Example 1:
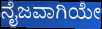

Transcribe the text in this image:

ನೈಜವಾಗಿಯೇ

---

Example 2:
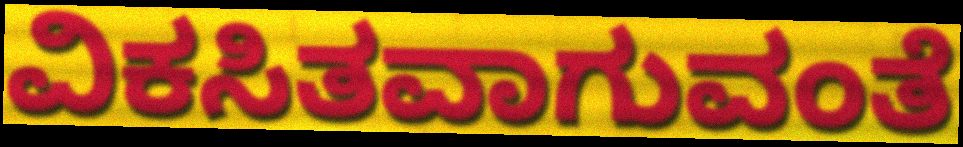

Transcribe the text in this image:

ವಿಕಸಿತವಾಗುವಂತೆ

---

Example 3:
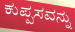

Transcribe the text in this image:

ಕುಪ್ಪಸವನ್ನು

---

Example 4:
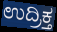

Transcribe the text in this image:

ಉದ್ರಿಕ್ತ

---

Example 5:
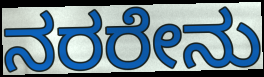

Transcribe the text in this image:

ನರರೇನು